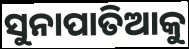
ସୁନାପାତିଆକୁ